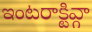
ఇంటరాక్టివ్గా